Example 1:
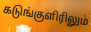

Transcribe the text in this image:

கடுங்குளிரிலும்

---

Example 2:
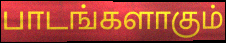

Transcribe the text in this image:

பாடங்களாகும்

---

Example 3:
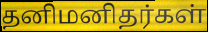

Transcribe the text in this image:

தனிமனிதர்கள்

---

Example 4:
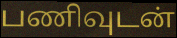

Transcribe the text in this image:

பணிவுடன்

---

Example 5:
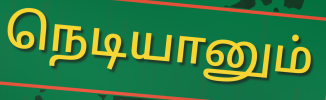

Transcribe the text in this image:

நெடியானும்